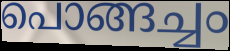
പൊങ്ങച്ചം